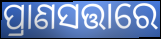
ପ୍ରାଣସତ୍ତାରେ